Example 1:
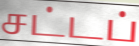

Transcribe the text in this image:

சட்டப்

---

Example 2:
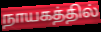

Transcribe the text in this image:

நாயகத்தில்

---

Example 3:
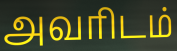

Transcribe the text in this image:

அவரிடம்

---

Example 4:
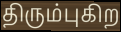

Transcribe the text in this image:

திரும்புகிற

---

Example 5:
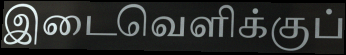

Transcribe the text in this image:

இடைவெளிக்குப்